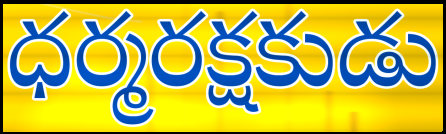
ధర్మరక్షకుడు